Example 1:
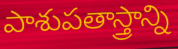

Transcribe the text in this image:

పాశుపతాస్త్రాన్ని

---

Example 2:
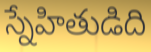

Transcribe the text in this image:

స్నేహితుడిది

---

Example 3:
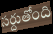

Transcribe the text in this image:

సర్దుతోంది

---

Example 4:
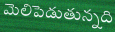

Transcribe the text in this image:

మెలిపెడుతున్నది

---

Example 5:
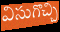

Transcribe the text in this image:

విసుగొచ్చి